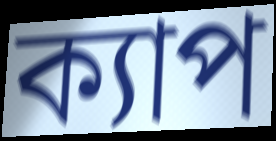
ক্যাপ